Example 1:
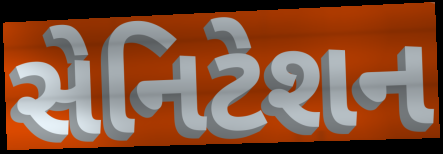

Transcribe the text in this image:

સેનિટેશન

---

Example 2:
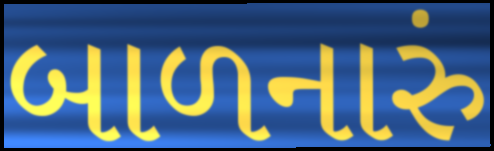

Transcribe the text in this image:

બાળનારું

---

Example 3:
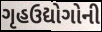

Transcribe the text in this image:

ગૃહઉદ્યોગોની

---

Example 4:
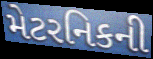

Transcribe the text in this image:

મેટરનિકની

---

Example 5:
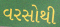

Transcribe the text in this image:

વરસોથી